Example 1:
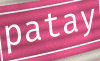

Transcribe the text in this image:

patay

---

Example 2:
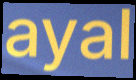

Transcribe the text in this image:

ayal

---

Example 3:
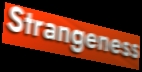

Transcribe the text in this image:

Strangeness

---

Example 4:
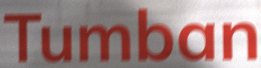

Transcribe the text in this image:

Tumban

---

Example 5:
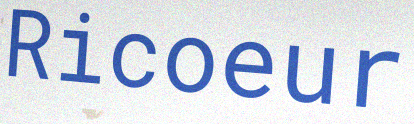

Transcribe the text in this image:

Ricoeur